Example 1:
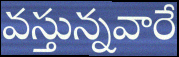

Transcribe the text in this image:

వస్తున్నవారే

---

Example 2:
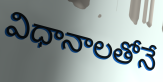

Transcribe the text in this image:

విధానాలతోనే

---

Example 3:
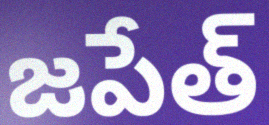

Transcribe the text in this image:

జపేత్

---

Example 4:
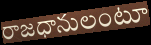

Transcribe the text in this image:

రాజధానులంటూ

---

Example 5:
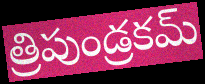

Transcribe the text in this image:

త్రిపుండ్రకమ్